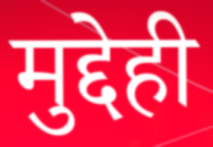
मुद्देही